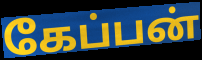
கேப்பன்